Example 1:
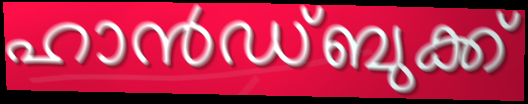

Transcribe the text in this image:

ഹാൻഡ്ബുക്ക്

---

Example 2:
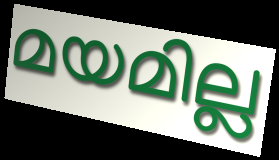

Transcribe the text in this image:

മയമില്ല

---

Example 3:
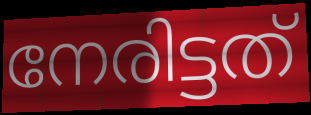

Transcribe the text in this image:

നേരിട്ടത്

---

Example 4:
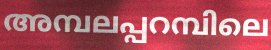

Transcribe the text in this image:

അമ്പലപ്പറമ്പിലെ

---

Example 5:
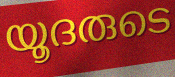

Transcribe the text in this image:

യൂദരുടെ